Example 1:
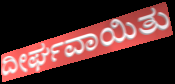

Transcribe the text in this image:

ದೀರ್ಘವಾಯಿತು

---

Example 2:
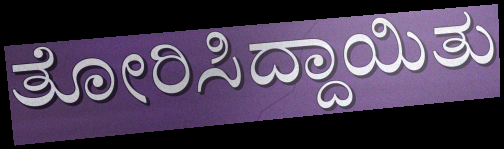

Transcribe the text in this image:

ತೋರಿಸಿದ್ದಾಯಿತು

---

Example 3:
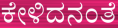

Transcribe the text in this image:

ಕೇಳಿದನಂತೆ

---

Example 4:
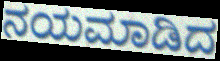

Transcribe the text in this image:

ನಯಮಾಡಿದ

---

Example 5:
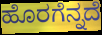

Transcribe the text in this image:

ಹೊರಗೆನ್ನದೆ